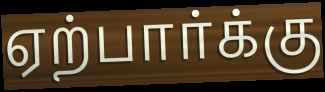
ஏற்பார்க்கு